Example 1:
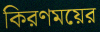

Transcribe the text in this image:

কিরণময়ের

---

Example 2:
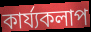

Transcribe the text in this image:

কার্য্যকলাপ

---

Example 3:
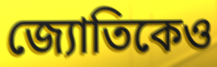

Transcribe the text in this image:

জ্যোতিকেও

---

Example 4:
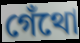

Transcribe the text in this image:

গেঁথো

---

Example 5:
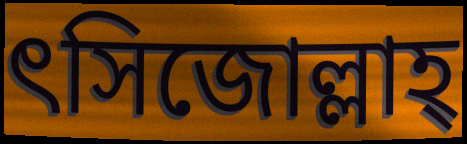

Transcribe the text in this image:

ৎসিজোল্লাহ্